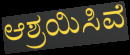
ಆಶ್ರಯಿಸಿವೆ